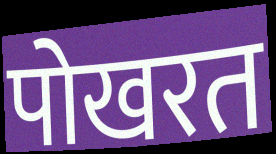
पोखरत